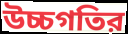
উচ্চগতির